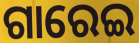
ଗାରେଇ